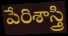
పేరిశాస్త్రి